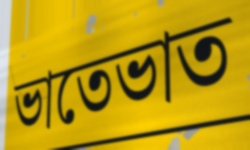
ভাতেভাত